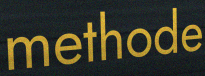
methode